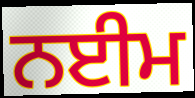
ਨਈਮ